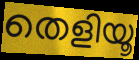
തെളിയൂ